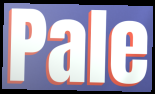
Pale